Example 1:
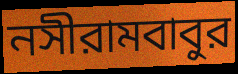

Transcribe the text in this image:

নসীরামবাবুর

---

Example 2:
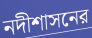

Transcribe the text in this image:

নদীশাসনের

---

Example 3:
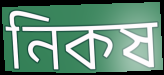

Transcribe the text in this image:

নিকষ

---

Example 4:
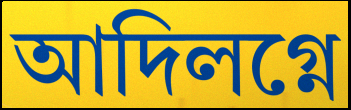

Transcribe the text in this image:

আদিলগ্নে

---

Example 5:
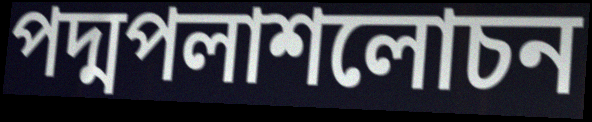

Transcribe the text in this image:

পদ্মপলাশলোচন